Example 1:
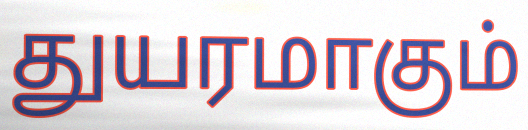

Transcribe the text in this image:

துயரமாகும்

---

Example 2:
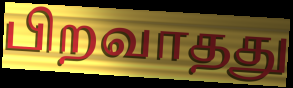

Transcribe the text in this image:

பிறவாதது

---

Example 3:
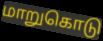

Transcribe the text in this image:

மாறுகொடு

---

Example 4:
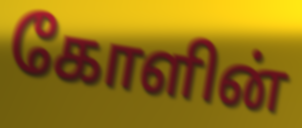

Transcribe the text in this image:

கோளின்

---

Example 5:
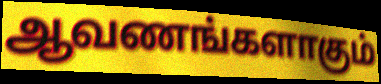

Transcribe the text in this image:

ஆவணங்களாகும்